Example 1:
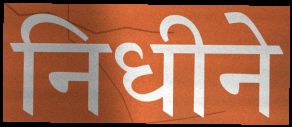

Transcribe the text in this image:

निधीने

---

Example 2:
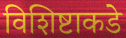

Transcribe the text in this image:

विशिष्टाकडे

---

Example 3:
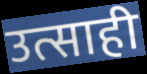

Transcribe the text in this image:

उत्साही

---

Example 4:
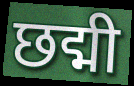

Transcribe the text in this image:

छद्मी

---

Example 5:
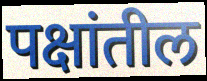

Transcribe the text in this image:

पक्षांतील